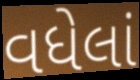
વધેલાં